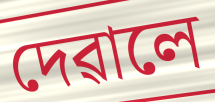
দেৱালে